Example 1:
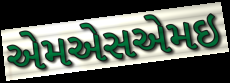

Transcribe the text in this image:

એમએસએમઇ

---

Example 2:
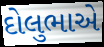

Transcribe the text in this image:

દોલુભાએ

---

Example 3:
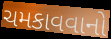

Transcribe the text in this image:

ચમકાવવાનો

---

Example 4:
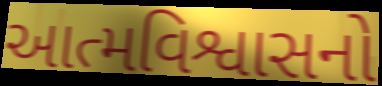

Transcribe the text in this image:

આત્મવિશ્વાસનો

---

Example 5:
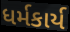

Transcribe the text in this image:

ધર્મકાર્ય